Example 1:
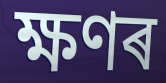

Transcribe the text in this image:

ক্ষণৰ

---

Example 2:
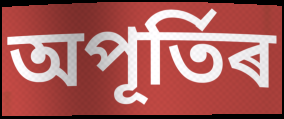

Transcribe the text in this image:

অপূৰ্তিৰ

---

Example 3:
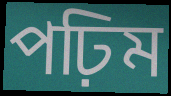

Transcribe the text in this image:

পঢ়িম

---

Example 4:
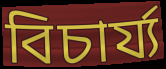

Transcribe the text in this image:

বিচাৰ্য্য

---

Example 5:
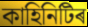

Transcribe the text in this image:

কাহিনিটিৰ